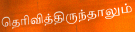
தெரிவித்திருந்தாலும்